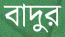
বাদুর